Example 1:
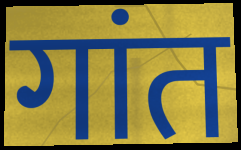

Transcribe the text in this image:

गांत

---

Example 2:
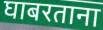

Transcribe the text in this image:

घाबरताना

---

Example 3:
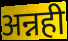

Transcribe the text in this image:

अन्नही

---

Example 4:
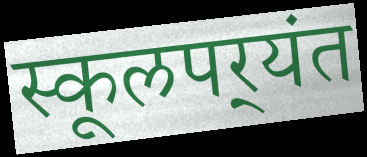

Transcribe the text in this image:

स्कूलपर्यंत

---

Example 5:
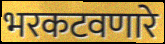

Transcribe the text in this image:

भरकटवणारे